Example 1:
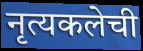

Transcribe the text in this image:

नृत्यकलेची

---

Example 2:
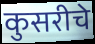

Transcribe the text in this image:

कुसरीचे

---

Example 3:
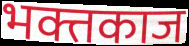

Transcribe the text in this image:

भक्तकाज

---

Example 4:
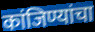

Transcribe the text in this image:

कांजिण्यांचा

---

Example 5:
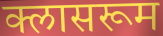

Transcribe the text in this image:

क्लासरूम